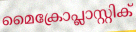
മൈക്രോപ്ലാസ്റ്റിക്